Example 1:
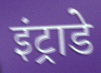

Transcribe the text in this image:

इंट्राडे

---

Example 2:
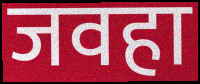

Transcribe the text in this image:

जवहा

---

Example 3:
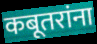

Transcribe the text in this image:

कबूतरांना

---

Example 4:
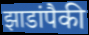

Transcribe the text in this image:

झाडांपैकी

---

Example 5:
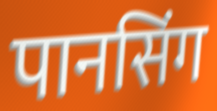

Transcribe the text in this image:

पानसिंग